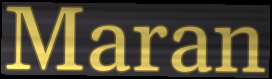
Maran